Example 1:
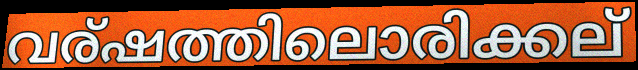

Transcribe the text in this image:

വര്ഷത്തിലൊരിക്കല്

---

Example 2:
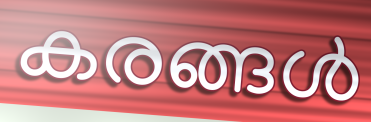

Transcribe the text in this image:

കരങ്ങൾ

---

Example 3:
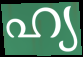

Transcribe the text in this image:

ഹ്യ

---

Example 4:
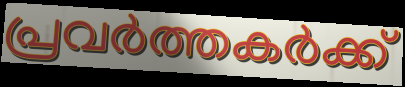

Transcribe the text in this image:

പ്രവർത്തകർക്ക്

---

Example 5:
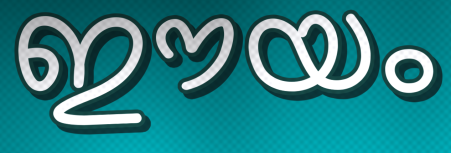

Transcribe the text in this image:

ഈയം